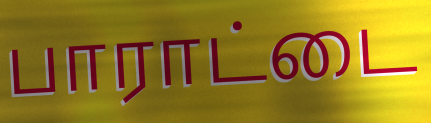
பாராட்டை